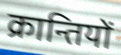
क्रान्तियों